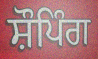
ਸ਼ੌਪਿੰਗ